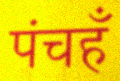
पंचहँ